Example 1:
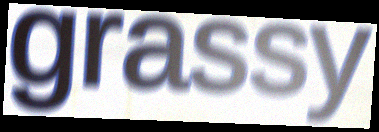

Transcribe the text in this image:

grassy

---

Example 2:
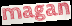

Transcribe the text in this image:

magan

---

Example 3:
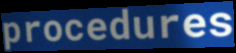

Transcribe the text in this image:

procedures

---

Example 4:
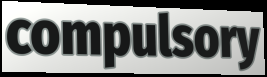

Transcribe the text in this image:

compulsory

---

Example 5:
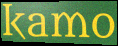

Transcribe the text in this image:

kamo